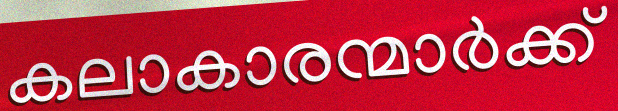
കലാകാരന്മാർക്ക്